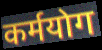
कर्मयोग